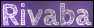
Rivaba